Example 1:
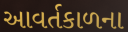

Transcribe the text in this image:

આવર્તકાળના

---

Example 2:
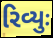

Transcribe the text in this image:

રિવ્યુઃ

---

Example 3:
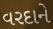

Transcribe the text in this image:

વરદાને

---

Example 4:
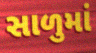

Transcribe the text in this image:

સાળુમાં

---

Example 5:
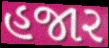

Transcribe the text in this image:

હજાર